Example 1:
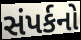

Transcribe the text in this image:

સંપર્કનો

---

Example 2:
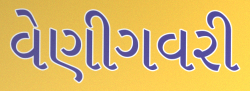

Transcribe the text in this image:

વેણીગવરી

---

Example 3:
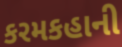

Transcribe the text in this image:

કરમકહાની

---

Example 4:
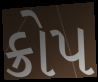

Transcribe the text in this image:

ક્રોપ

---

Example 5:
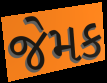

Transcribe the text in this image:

જેમક